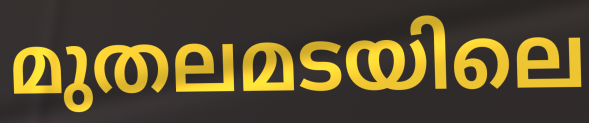
മുതലമടയിലെ